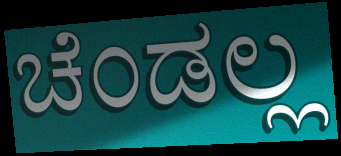
ಚೆಂಡಲ್ಲ